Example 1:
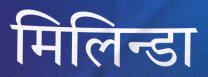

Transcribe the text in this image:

मिलिन्डा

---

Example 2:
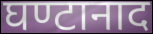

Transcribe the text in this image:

घण्टानाद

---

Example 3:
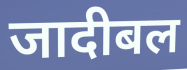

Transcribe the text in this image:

जादीबल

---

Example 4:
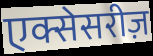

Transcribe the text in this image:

एक्सेसरीज़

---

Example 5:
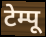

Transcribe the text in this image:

टेम्पू